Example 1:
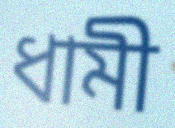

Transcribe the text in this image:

ধামী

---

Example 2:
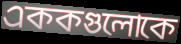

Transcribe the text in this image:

এককগুলোকে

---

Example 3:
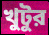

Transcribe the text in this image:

খুটুর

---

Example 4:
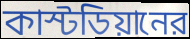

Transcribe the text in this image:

কাস্টডিয়ানের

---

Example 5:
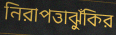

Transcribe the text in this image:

নিরাপত্তাঝুঁকির